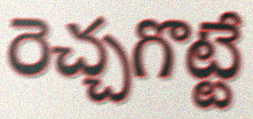
రెచ్చగొట్టే